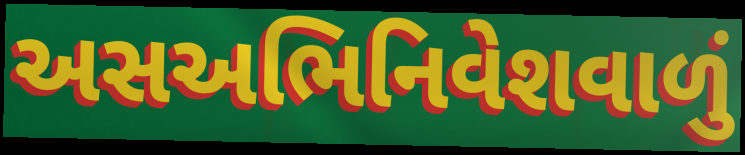
અસઅભિનિવેશવાળું